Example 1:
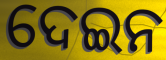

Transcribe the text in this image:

ଦେଇନ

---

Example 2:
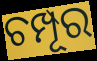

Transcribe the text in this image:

ଚମ୍ପୂର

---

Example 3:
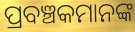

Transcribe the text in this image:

ପ୍ରବଞ୍ଚକମାନଙ୍କ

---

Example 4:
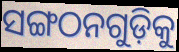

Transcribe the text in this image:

ସଙ୍ଗଠନଗୁଡ଼ିକୁ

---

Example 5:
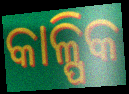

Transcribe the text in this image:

କାଳ୍ପିକ